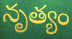
నృత్యం